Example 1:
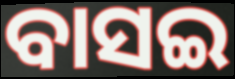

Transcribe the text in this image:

ବାସଇ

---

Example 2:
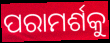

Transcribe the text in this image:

ପରାମର୍ଶକୁ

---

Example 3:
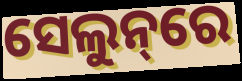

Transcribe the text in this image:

ସେଲୁନ୍‌ରେ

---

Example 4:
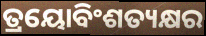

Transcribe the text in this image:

ତ୍ରୟୋବିଂଶତ୍ୟକ୍ଷର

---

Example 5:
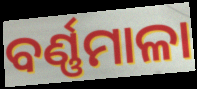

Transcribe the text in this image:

ବର୍ଣ୍ଣମାଳା